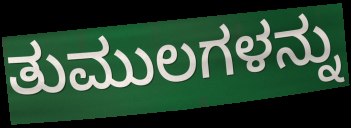
ತುಮುಲಗಳನ್ನು